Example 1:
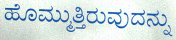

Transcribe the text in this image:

ಹೊಮ್ಮುತ್ತಿರುವುದನ್ನು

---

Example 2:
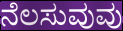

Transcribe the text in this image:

ನೆಲಸುವುವು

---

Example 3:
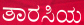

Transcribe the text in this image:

ತಾರಸಿಯ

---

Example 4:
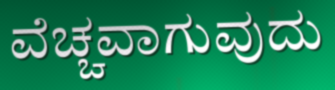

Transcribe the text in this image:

ವೆಚ್ಚವಾಗುವುದು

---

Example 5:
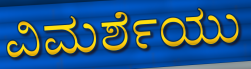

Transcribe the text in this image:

ವಿಮರ್ಶೆಯು